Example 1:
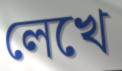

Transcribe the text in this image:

লেখে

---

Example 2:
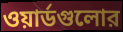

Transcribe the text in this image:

ওয়ার্ডগুলোর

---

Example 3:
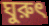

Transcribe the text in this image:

ঘুরুৎ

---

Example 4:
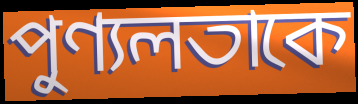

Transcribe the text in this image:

পুণ্যলতাকে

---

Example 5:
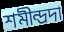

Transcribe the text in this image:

শমীন্দ্রদা